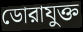
ডোরাযুক্ত